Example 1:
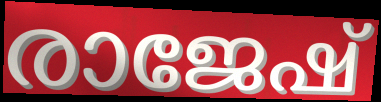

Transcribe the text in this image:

രാജേഷ്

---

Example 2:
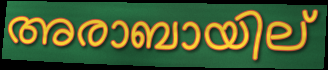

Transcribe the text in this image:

അരാബായില്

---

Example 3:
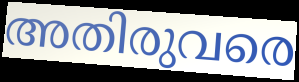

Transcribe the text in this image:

അതിരുവരെ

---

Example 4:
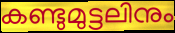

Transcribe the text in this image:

കണ്ടുമുട്ടലിനും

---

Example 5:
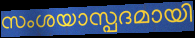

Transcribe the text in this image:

സംശയാസ്പദമായി